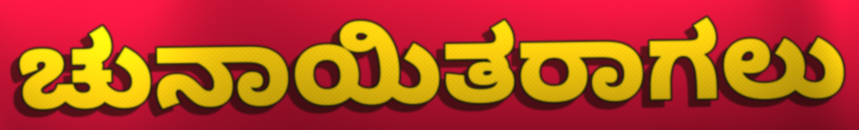
ಚುನಾಯಿತರಾಗಲು